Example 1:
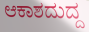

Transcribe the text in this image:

ಆಕಾಶದುದ್ದ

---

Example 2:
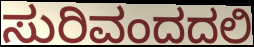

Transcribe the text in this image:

ಸುರಿವಂದದಲಿ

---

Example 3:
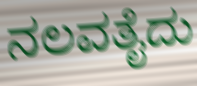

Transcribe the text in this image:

ನಲವತೈದು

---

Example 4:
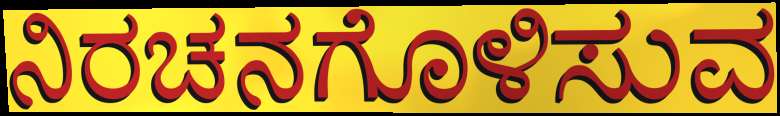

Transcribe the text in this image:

ನಿರಚನಗೊಳಿಸುವ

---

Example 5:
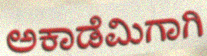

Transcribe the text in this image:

ಅಕಾಡೆಮಿಗಾಗಿ